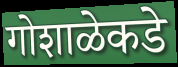
गोशाळेकडे